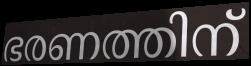
ഭരണത്തിന്